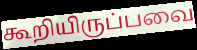
கூறியிருப்பவை